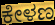
ಕೇಳಣ